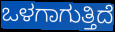
ಒಳಗಾಗುತ್ತಿದೆ